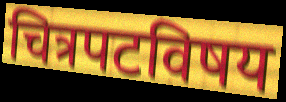
चित्रपटविषय